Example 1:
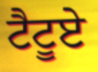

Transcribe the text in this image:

ਟੈਟੂਏ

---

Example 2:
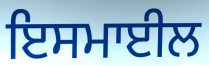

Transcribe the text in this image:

ਇਸਮਾਈਲ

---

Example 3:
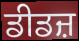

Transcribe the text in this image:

ਡੀਡਜ਼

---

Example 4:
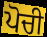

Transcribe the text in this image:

ਪੋਚੀ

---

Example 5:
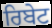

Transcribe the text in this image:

ਰਿਬੇਟ